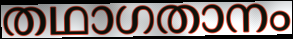
തഥാഗതാനം